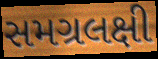
સમગ્રલક્ષી